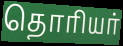
தொரியர்